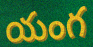
యంగ